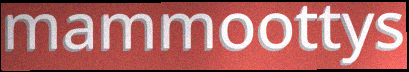
mammoottys